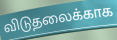
விடுதலைக்காக